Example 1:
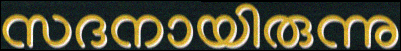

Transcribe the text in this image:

സദനായിരുന്നു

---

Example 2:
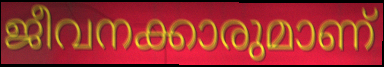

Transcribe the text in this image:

ജീവനക്കാരുമാണ്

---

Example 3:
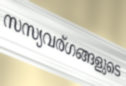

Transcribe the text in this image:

സസ്യവര്ഗങ്ങളുടെ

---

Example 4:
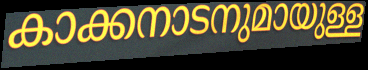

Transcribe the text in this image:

കാക്കനാടനുമായുള്ള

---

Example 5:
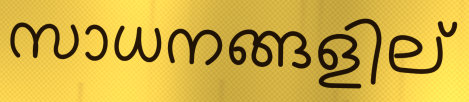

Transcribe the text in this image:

സാധനങ്ങളില്